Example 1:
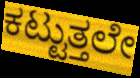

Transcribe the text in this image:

ಕಟ್ಟುತ್ತಲೇ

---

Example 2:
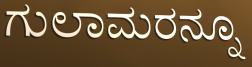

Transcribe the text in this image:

ಗುಲಾಮರನ್ನೂ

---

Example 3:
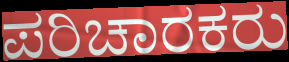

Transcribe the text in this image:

ಪರಿಚಾರಕರು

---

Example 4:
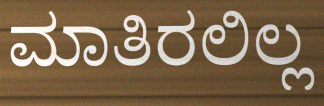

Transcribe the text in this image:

ಮಾತಿರಲಿಲ್ಲ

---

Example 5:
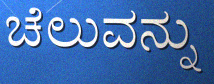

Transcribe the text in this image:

ಚೆಲುವನ್ನು